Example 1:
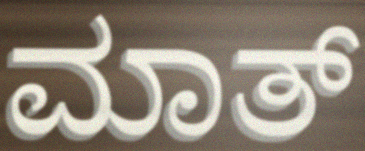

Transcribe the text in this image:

ಮಾತ್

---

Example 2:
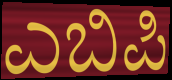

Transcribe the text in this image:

ಎಬಿಪಿ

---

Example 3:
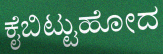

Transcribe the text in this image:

ಕೈಬಿಟ್ಟುಹೋದ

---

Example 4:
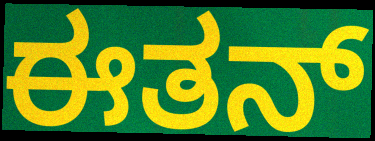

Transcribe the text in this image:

ಈತನ್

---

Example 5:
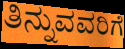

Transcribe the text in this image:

ತಿನ್ನುವವರಿಗೆ